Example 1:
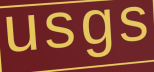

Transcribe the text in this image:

usgs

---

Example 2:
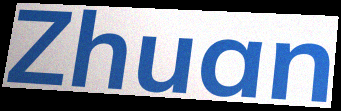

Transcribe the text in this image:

Zhuan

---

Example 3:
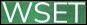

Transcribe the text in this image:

WSET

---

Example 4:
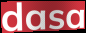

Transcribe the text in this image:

dasa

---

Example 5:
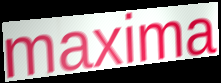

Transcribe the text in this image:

maxima